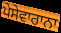
ਪੇਸੇਵਾਰਾਨਾ